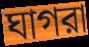
ঘাগরা